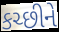
કચ્છીને